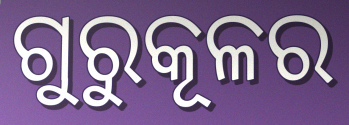
ଗୁରୁକୂଳର